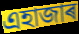
এহাজাৰ